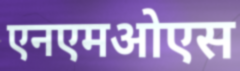
एनएमओएस